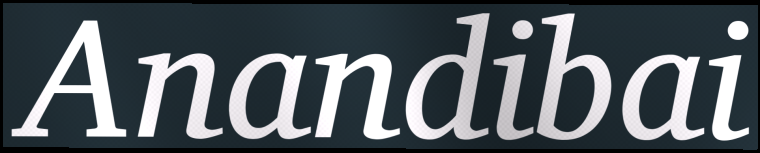
Anandibai